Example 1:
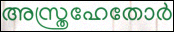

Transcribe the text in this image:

അസ്ത്രഹേതോർ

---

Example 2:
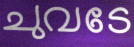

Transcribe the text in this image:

ചുവടേ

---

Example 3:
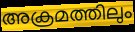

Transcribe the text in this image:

അക്രമത്തിലും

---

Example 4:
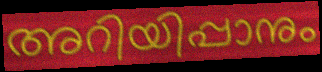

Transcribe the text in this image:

അറിയിപ്പാനും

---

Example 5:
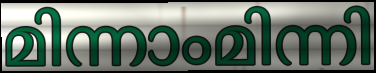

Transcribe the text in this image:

മിന്നാംമിന്നി